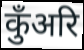
कुँअरि